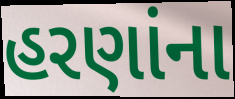
હરણાંના